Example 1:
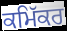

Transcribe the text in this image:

ਕਮਿੱਕਰ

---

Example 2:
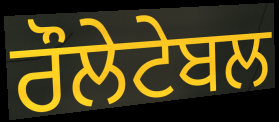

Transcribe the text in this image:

ਰੌਲੇਟੇਬਲ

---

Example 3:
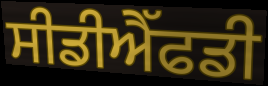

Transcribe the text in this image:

ਸੀਡੀਐੱਫਡੀ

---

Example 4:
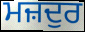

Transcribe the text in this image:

ਮਜ਼ਦੁਰ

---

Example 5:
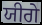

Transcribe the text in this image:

ਯੀਗੇ